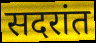
सदरांत